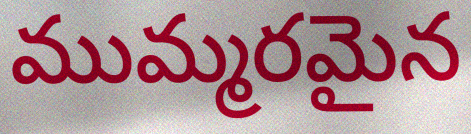
ముమ్మరమైన